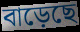
বাড়েছে